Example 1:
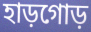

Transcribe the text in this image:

হাড়গোড়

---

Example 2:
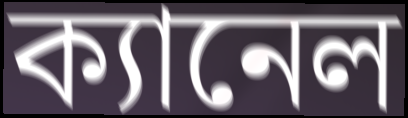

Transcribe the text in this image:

ক্যানেল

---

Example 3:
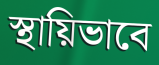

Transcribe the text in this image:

স্থায়িভাবে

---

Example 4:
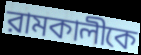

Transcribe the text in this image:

রামকালীকে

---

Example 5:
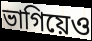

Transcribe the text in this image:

ভাগিয়েও